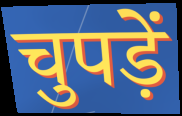
चुपड़ें